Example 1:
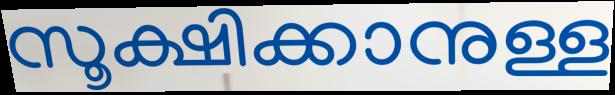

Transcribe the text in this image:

സൂക്ഷിക്കാനുള്ള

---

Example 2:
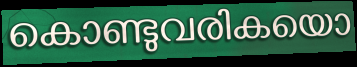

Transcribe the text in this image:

കൊണ്ടുവരികയൊ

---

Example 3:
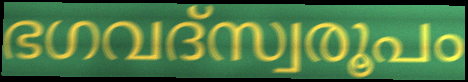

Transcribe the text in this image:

ഭഗവദ്സ്വരൂപം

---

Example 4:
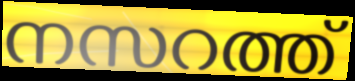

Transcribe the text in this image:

നസറത്ത്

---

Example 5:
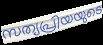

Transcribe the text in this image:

സത്യപ്രിയയുടെ